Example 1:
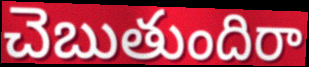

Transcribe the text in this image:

చెబుతుందిరా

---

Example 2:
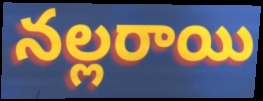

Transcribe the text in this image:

నల్లరాయి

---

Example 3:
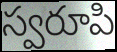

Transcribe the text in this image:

స్వరూపి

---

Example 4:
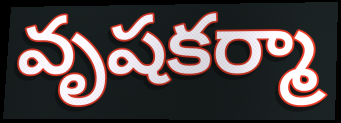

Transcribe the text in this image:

వృషకర్మా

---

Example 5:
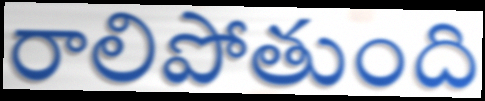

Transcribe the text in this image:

రాలిపోతుంది